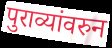
पुराव्यांवरुन